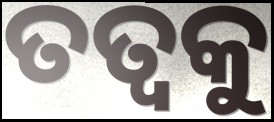
ତତ୍ୱକୁ